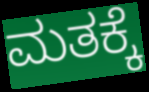
ಮತಕ್ಕೆ